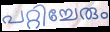
പറ്റിച്ചേരും